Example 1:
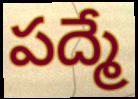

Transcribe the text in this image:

పద్మే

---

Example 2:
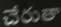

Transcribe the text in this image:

చేరుతా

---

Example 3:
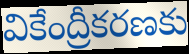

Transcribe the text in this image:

వికేంద్రీకరణకు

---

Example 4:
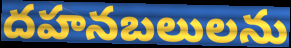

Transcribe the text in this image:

దహనబలులను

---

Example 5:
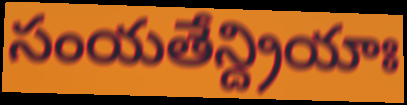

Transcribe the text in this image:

సంయతేన్ద్రియాః